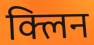
क्लिन